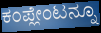
ಕಂಪ್ಲೇಂಟನ್ನೂ